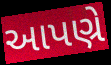
આપણ્રે